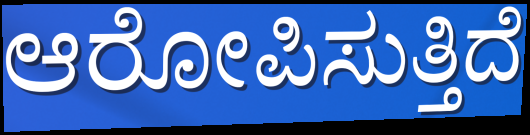
ಆರೋಪಿಸುತ್ತಿದೆ